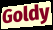
Goldy